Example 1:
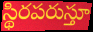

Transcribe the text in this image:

స్థిరపరుస్తూ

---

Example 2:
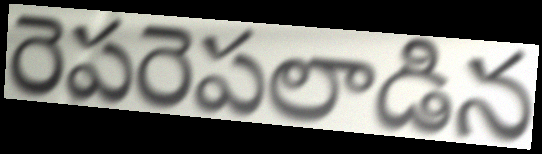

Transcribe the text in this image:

రెపరెపలాడిన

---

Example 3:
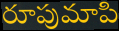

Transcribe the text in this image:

రూపుమాపి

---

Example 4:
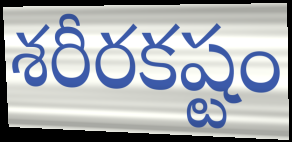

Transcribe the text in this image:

శరీరకష్టం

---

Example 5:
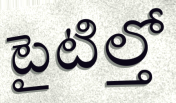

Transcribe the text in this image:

టైటిల్తో